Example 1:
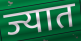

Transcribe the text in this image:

ज्यात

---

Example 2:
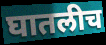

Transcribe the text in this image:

घातलीच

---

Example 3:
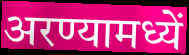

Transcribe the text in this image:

अरण्यामध्यें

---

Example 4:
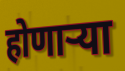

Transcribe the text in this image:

होणाऱ्या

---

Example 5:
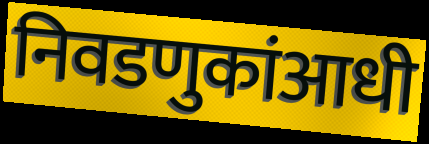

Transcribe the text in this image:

निवडणुकांआधी